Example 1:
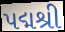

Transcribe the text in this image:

પદ્મશ્રી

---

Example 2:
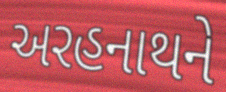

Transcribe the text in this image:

અરહનાથને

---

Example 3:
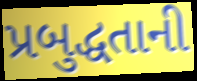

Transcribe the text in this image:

પ્રબુદ્ધતાની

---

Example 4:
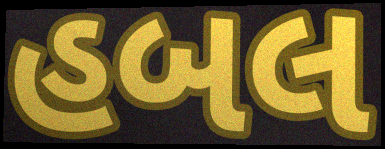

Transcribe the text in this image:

હબલ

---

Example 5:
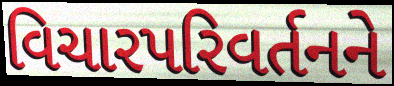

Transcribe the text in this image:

વિચારપરિવર્તનને